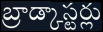
బ్రాడ్కాస్టర్లు